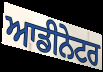
ਆਡੀਨੇਟਰ